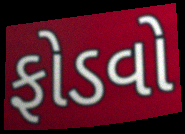
ફોડવો